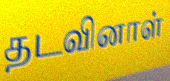
தடவினாள்